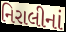
નિરાલીનાં